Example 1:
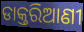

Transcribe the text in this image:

ଡାକ୍ତରିଆଣୀ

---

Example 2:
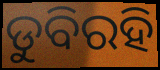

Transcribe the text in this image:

ଡୁବିରହି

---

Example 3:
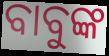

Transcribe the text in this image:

ବାବୁଙ୍କ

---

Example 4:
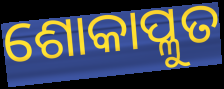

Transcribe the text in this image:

ଶୋକାପ୍ଳୁତ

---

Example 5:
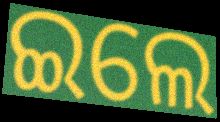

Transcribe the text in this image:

ଇଲେ